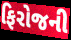
ફિરોજની